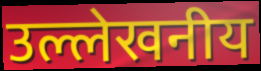
उल्लेखनीय